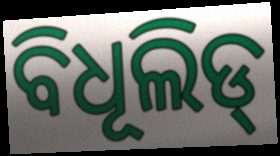
ବିଧୂଲିଡ୍